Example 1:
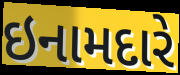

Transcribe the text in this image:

ઇનામદારે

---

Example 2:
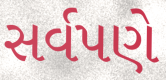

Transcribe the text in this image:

સર્વપણે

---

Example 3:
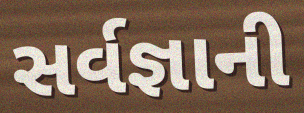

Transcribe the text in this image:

સર્વજ્ઞાની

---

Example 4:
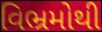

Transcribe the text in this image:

વિભ્રમોથી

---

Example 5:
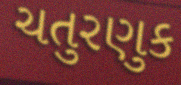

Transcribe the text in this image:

ચતુરણુક